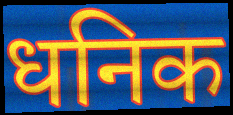
धनिक